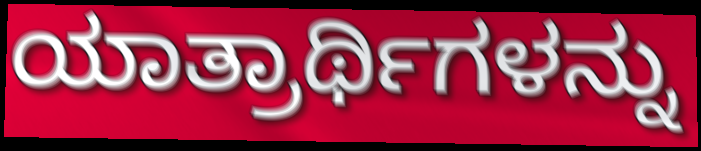
ಯಾತ್ರಾರ್ಥಿಗಳನ್ನು